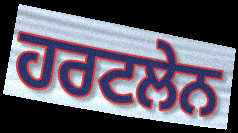
ਹਰਟਲੇਨ